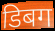
डिबग